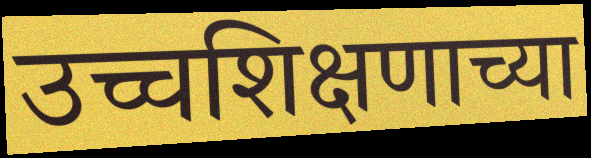
उच्चशिक्षणाच्या